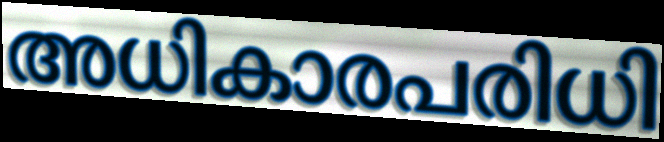
അധികാരപരിധി